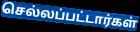
செல்லப்பட்டார்கள்